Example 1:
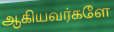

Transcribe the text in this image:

ஆகியவர்களே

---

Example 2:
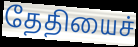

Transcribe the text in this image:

தேதியைச்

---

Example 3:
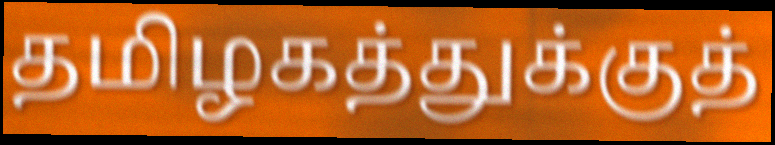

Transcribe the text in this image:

தமிழகத்துக்குத்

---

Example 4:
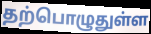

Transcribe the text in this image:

தற்பொழுதுள்ள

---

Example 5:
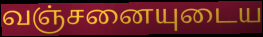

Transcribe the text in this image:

வஞ்சனையுடைய